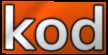
kod